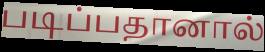
படிப்பதானால்